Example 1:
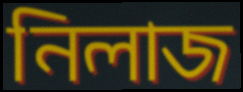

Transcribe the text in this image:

নিলাজ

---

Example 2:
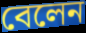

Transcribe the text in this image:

বেলেন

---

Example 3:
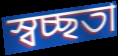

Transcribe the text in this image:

স্বচ্ছতা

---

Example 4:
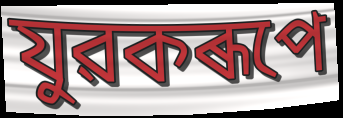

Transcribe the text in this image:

যুৱকৰূপে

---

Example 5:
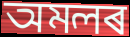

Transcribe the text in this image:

অমলৰ